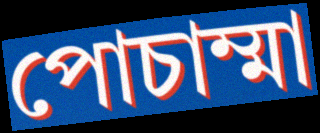
পোচাম্মা